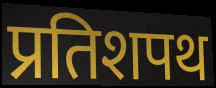
प्रतिशपथ